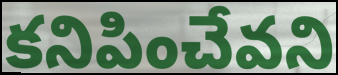
కనిపించేవని